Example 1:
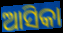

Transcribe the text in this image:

ଆସିକା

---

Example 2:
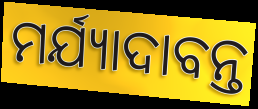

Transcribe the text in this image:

ମର୍ଯ୍ୟାଦାବନ୍ତ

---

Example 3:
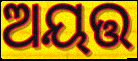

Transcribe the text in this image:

ଅୟତ୍ତ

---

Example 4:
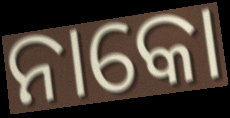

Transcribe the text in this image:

ନାକୋ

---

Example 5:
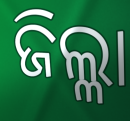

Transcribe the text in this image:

ଜିଲ୍ଳା